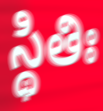
స్థితిః